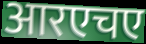
आरएचए